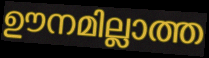
ഊനമില്ലാത്ത